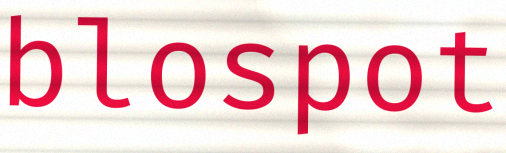
blospot